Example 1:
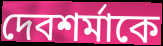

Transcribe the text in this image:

দেবশর্মাকে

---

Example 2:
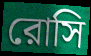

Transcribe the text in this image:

রোসি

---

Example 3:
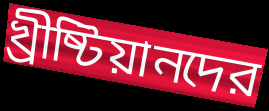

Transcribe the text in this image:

খ্রীষ্টিয়ানদের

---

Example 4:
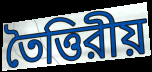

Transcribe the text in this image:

তৈত্তিরীয়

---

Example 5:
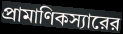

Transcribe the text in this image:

প্রামাণিকস্যারের